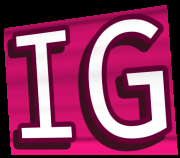
IG